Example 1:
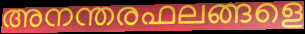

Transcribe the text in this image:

അനന്തരഫലങ്ങളെ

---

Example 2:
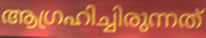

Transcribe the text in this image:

ആഗ്രഹിച്ചിരുന്നത്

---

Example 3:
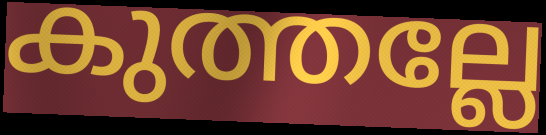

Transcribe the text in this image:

കുത്തല്ലേ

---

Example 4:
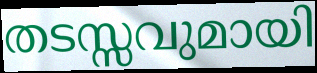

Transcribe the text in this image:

തടസ്സവുമായി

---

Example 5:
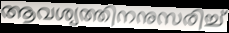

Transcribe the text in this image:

ആവശ്യത്തിനനുസരിച്ച്